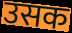
उसक